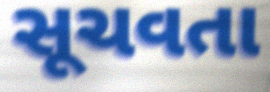
સૂચવતા